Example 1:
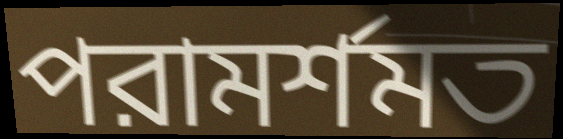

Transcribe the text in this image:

পরামর্শমত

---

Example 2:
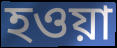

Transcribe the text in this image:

হওয়া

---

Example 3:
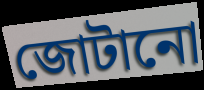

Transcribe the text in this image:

জোটানো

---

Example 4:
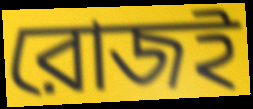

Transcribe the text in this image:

রোজই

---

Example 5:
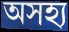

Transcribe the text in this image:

অসহ্য